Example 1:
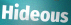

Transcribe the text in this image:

Hideous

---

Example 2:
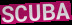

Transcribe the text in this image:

SCUBA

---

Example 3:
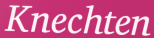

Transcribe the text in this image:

Knechten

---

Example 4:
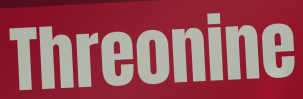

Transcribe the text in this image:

Threonine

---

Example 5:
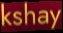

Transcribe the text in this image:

kshay